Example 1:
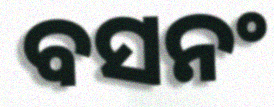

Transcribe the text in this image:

ବସନଂ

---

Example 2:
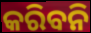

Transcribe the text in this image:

କରିବନି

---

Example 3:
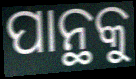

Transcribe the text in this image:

ପାନ୍ଥକୁ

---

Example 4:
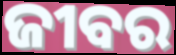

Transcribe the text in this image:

ଜୀବର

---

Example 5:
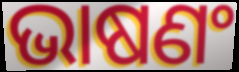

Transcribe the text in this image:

ଭାଷଣଂ